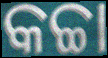
କଚ୍ଚା